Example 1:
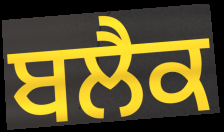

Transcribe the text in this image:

ਬਲੈਕ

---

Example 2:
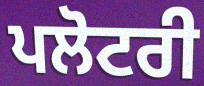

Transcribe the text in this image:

ਪਲੋਟਰੀ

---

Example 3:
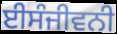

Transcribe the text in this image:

ਈਸੰਜੀਵਨੀ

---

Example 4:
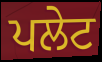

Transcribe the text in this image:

ਪਲੇਟ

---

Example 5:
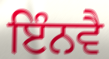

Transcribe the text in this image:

ਇੰਨਵੈ